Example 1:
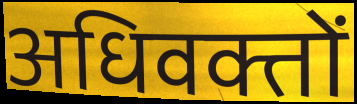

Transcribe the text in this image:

अधिवक्तों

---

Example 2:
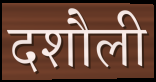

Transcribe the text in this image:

दशौली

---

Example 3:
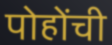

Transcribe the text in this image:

पोहोंची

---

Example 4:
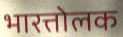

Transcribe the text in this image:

भारत्तोलक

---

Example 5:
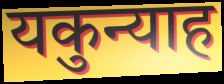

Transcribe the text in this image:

यकुन्याह